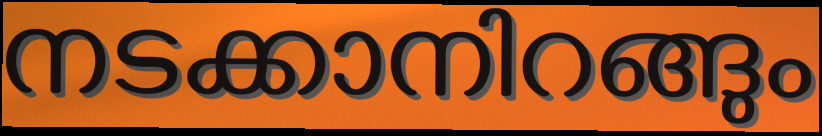
നടക്കാനിറങ്ങും